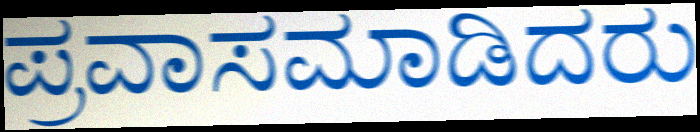
ಪ್ರವಾಸಮಾಡಿದರು